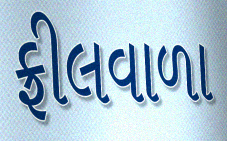
ફ્રીલવાળા